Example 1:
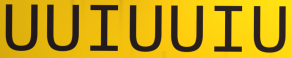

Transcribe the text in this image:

UUIUUIU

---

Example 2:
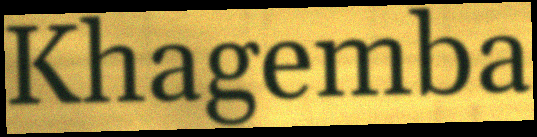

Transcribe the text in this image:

Khagemba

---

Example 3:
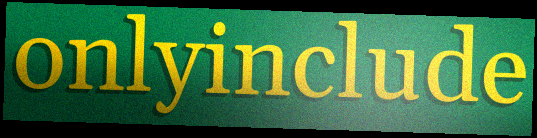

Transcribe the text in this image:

onlyinclude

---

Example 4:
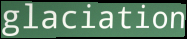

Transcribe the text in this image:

glaciation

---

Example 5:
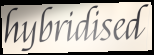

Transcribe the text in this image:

hybridised